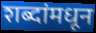
शब्दांमधून